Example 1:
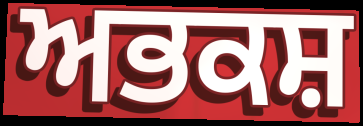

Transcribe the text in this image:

ਅਭਕਸ਼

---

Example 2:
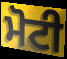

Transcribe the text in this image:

ਮੋਟੀ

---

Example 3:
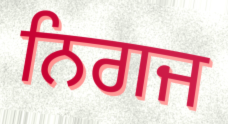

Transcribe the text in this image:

ਨਿਗਜ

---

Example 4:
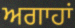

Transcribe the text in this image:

ਅਗਾਹਾਂ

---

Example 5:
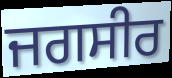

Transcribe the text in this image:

ਜਗਸੀਰ